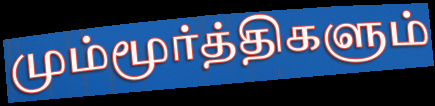
மும்மூர்த்திகளும்